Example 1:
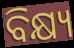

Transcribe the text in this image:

ବିକ୍ଷ୍ଯ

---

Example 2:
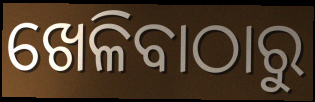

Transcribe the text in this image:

ଖେଳିବାଠାରୁ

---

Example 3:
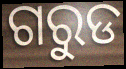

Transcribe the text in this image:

ଗରୁଡ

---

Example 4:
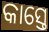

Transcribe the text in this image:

କାସ୍ତେ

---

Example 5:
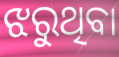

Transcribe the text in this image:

ଝରୁଥିବା